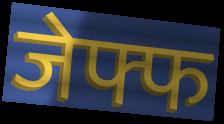
जेफ्फ